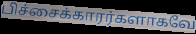
பிச்சைக்காரர்களாகவே